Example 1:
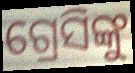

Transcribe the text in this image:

ଗ୍ରେସିଙ୍କୁ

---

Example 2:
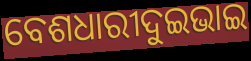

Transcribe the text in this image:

ବେଶଧାରୀଦୁଇଭାଇ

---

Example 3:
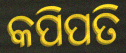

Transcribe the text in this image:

କପିପତି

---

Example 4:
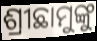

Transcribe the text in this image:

ଶ୍ରୀଛାମୁଙ୍କୁ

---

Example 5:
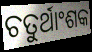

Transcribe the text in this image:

ଚତୁର୍ଥାଂଶକ